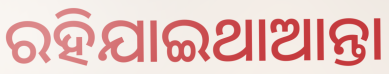
ରହିଯାଇଥାଆନ୍ତା